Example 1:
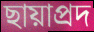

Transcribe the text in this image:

ছায়াপ্রদ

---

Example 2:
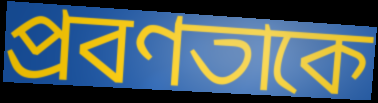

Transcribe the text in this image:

প্রবণতাকে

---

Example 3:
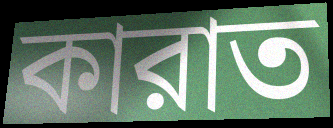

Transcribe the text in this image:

কারাত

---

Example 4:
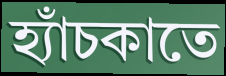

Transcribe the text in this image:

হ্যাঁচকাতে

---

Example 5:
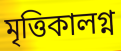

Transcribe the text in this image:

মৃত্তিকালগ্ন